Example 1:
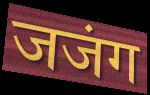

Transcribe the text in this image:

जजंग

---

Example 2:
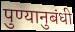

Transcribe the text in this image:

पुण्यानुबंधी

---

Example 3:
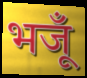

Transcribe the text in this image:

भजूँ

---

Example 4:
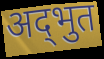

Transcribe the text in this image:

अद्‌भुत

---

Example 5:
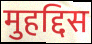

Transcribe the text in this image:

मुहद्दिस